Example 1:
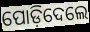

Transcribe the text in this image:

ପୋଡ଼ିଦେଲେ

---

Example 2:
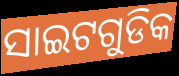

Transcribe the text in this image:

ସାଇଟଗୁଡିକ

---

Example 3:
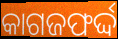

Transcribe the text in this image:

କାଗଜଫର୍ଦ୍ଦ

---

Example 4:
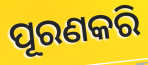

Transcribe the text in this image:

ପୂରଣକରି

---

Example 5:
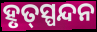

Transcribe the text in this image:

ହୃତ୍‌ସ୍ପନ୍ଦନ